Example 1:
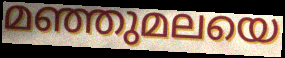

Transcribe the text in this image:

മഞ്ഞുമലയെ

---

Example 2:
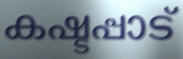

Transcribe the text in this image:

കഷ്ടപ്പാട്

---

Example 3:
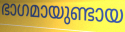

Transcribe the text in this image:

ഭാഗമായുണ്ടായ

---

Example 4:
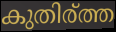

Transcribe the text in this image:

കുതിര്ത്ത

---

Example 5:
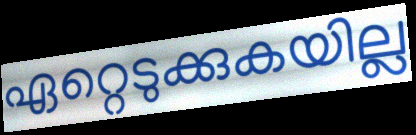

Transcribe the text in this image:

ഏറ്റെടുക്കുകയില്ല